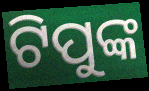
ଟିପୁଙ୍କ